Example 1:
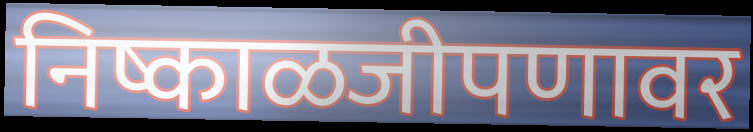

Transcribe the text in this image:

निष्काळजीपणावर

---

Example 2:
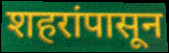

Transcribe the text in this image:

शहरांपासून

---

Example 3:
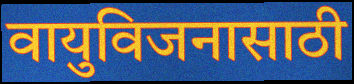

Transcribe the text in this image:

वायुविजनासाठी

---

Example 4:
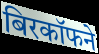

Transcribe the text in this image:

बिरकॉफने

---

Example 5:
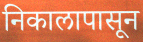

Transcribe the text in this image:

निकालापासून